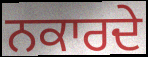
ਨਕਾਰਦੇ